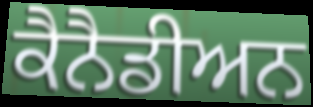
ਕੈਨੈਡੀਅਨ